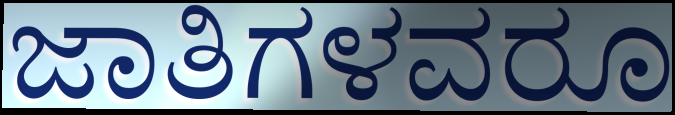
ಜಾತಿಗಳವರೂ